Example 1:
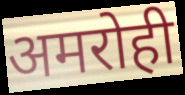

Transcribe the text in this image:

अमरोही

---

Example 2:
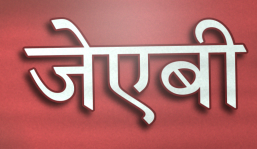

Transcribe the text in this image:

जेएबी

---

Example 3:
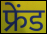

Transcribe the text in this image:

फ्रेंड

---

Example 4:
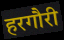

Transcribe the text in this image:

हरगौरी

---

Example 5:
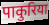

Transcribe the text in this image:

पाकुरिया